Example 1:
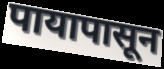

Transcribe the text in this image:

पायापासून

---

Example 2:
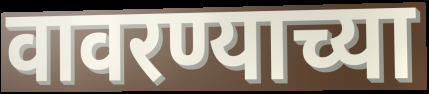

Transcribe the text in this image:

वावरण्याच्या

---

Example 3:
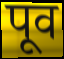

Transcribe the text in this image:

पूव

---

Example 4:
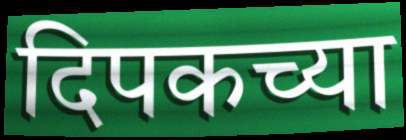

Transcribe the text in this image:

दिपकच्या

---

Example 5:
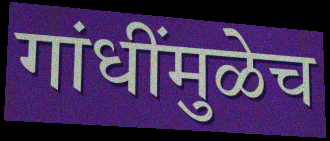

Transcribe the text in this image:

गांधींमुळेच